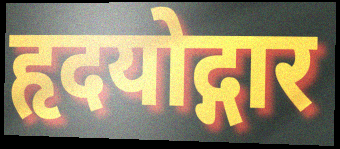
हृदयोद्गार